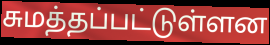
சுமத்தப்பட்டுள்ளன